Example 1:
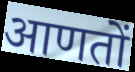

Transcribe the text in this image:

आणतों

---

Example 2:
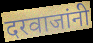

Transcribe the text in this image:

दरवाजांनी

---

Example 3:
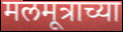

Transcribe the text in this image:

मलमूत्राच्या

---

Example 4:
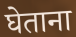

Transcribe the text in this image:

घेताना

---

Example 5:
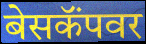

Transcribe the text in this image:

बेसकॅंपवर